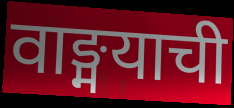
वाङ्मयाची